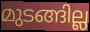
മുടങ്ങില്ല